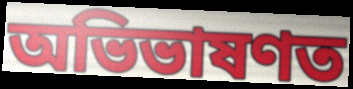
অভিভাষণত